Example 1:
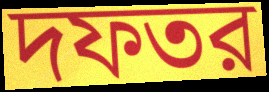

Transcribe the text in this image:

দফতর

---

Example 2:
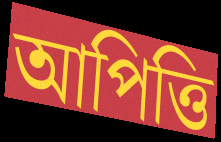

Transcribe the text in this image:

আপিত্তি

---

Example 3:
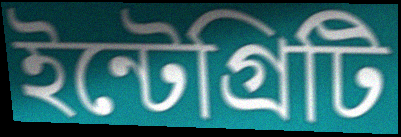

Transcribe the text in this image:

ইন্টেগ্রিটি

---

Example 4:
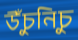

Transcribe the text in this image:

উঁচুনিচু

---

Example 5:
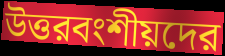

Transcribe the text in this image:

উত্তরবংশীয়দের